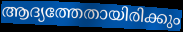
ആദ്യത്തേതായിരിക്കും